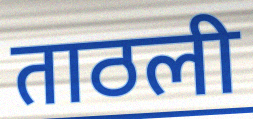
ताठली